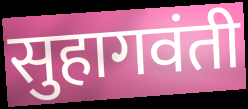
सुहागवंती